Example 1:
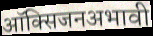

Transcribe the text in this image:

ऑक्सिजनअभावी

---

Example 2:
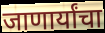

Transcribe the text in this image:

जाणार्यांचा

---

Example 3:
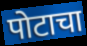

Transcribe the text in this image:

पोटाचा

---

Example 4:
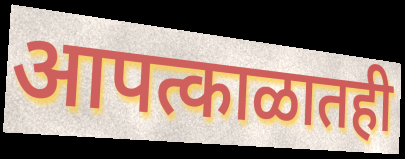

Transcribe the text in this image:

आपत्काळातही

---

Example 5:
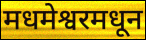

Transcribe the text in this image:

मधमेश्वरमधून